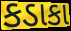
કડાકા